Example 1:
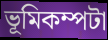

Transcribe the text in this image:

ভূমিকম্পটা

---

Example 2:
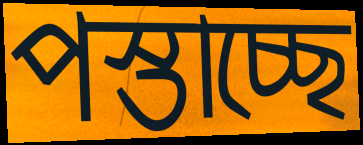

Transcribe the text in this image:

পস্তাচ্ছে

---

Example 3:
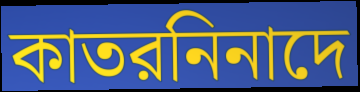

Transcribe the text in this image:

কাতরনিনাদে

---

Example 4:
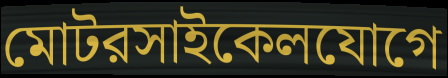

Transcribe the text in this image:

মোটরসাইকেলযোগে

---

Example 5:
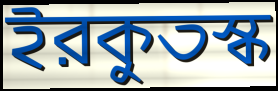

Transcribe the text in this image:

ইরকুতস্ক